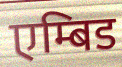
एम्बिड